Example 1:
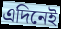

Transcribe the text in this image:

এদিনেই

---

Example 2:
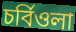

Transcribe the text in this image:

চর্বিওলা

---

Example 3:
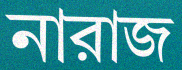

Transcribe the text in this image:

নারাজ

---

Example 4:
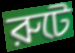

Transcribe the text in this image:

রুটে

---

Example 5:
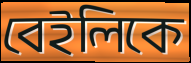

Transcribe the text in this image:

বেইলিকে